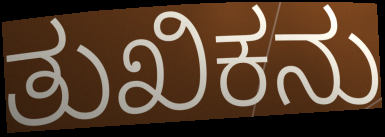
ತುಖಿಕನು